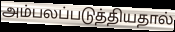
அம்பலப்படுத்தியதால்